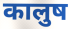
कालुष